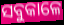
ସବୁକାଳେ